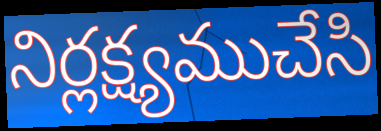
నిర్లక్ష్యముచేసి